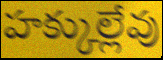
హక్కుల్లేవు